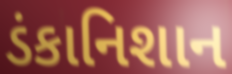
ડંકાનિશાન